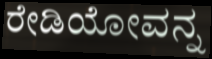
ರೇಡಿಯೋವನ್ನ